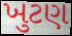
ખુટણ